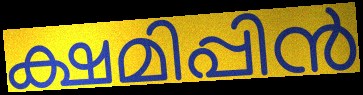
ക്ഷമിപ്പിൻ